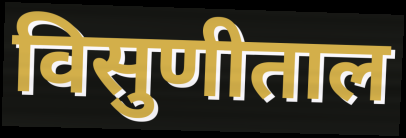
विसुणीताल